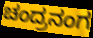
ಚಂದ್ರನಂಗ